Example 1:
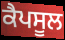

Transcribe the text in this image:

ਕੈਪਸੂਲ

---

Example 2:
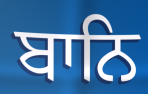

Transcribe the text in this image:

ਬਾਨਿ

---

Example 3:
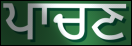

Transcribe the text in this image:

ਪਾਚਣ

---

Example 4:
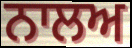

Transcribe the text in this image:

ਨਾਲਅ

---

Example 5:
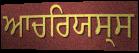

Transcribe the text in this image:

ਆਚਰਿਯਸ੍ਸ